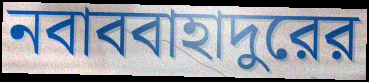
নবাববাহাদুরের